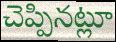
చెప్పినట్లూ